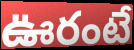
ఊరంటే